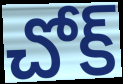
చోక్